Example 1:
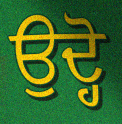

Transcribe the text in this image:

ਉਦ੍ਹੋ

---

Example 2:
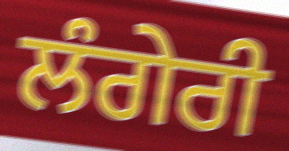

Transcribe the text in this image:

ਲੰਗੇਰੀ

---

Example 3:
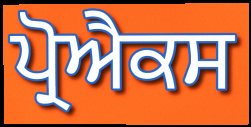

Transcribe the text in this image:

ਪ੍ਰੋਐਕਸ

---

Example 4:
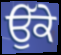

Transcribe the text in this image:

ਉੱਕੇ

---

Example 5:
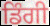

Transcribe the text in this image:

ਡਿੰਗੀ